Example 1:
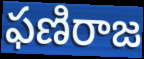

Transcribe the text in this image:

ఫణిరాజ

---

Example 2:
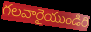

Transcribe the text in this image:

గలవారైయుండిరి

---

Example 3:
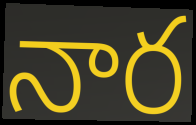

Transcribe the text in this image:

నార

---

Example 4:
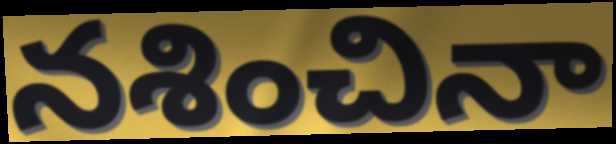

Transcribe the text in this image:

నశించినా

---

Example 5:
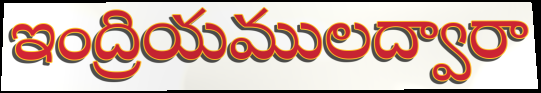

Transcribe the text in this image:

ఇంద్రియములద్వారా